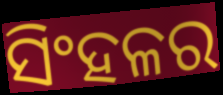
ସିଂହଳର